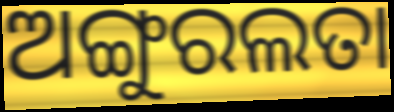
ଅଙ୍ଗୁରଲତା